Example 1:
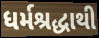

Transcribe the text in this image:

ધર્મશ્રદ્ધાથી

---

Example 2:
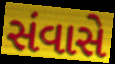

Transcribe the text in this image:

સંવાસે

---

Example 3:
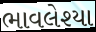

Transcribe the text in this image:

ભાવલેશ્યા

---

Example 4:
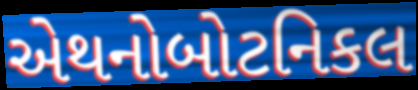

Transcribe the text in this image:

એથનોબોટનિકલ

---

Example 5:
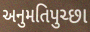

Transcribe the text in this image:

અનુમતિપુચ્છા